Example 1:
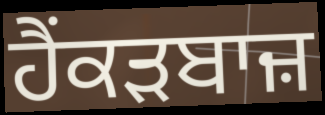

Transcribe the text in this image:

ਹੈਂਕੜਬਾਜ਼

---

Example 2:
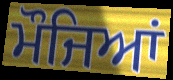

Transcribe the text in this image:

ਮੌਜਿਆਂ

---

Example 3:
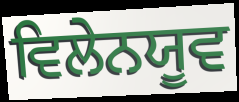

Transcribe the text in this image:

ਵਿਲੇਨਯੂਵ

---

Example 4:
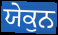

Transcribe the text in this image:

ਯੇਕੁਨ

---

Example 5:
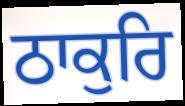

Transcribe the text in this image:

ਠਾਕੁਰਿ